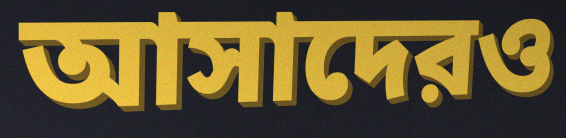
আসাদেরও